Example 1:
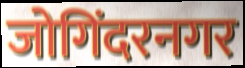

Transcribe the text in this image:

जोगिंदरनगर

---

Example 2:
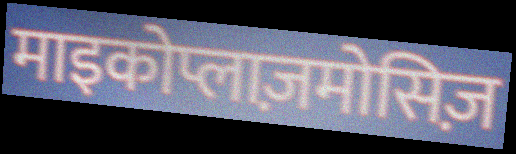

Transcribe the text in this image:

माइकोप्लाज़मोसिज़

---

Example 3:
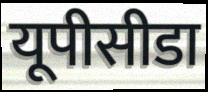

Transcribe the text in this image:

यूपीसीडा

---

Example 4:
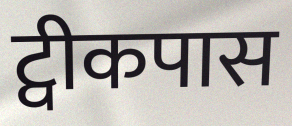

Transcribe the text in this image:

ट्वीकपास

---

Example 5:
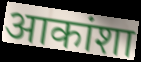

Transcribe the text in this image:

आकांशा